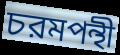
চরমপন্থী